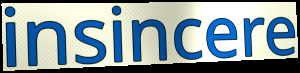
insincere